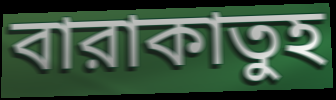
বারাকাতুহ